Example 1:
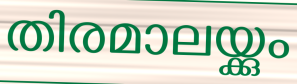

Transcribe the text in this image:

തിരമാലയ്ക്കും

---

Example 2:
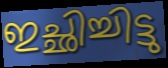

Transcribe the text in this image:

ഇച്ഛിച്ചിട്ടു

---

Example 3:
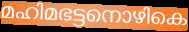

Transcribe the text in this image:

മഹിമഭട്ടനൊഴികെ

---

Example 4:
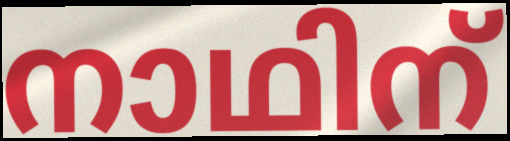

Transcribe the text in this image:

നാഥിന്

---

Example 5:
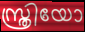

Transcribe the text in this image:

സ്ത്രിയോ